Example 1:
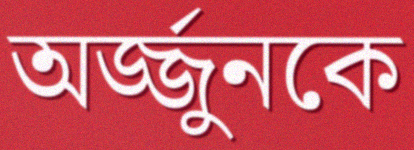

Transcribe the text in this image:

অর্জ্জুনকে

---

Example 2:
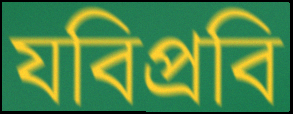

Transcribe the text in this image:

যবিপ্রবি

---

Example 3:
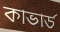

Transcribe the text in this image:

কাভার্ড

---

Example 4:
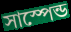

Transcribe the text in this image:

সাস্পেন্ড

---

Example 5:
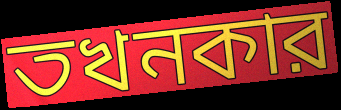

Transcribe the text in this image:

তখনকার